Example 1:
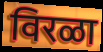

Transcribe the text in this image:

विरळा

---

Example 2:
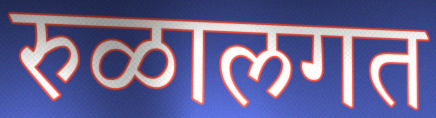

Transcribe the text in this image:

रुळालगत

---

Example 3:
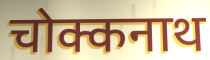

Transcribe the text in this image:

चोक्कनाथ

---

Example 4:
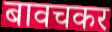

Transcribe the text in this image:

बावचकर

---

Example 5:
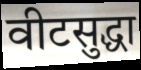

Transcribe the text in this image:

वीटसुद्धा